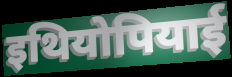
इथियोपियाई